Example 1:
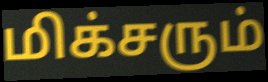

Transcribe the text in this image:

மிக்சரும்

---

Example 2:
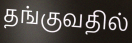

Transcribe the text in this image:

தங்குவதில்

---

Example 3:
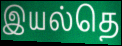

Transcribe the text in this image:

இயல்தெ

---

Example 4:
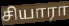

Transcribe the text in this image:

சியாரா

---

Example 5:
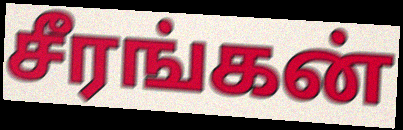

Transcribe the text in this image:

சீரங்கன்